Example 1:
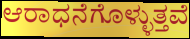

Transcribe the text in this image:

ಆರಾಧನೆಗೊಳ್ಳುತ್ತವೆ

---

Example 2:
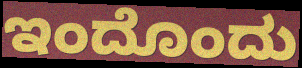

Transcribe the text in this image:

ಇಂದೊಂದು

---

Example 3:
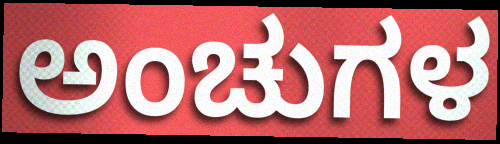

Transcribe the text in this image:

ಅಂಚುಗಳ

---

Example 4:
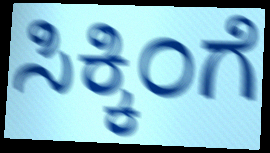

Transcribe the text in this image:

ಸಿಕ್ಕಿಂಗೆ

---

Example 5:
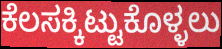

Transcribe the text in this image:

ಕೆಲಸಕ್ಕಿಟ್ಟುಕೊಳ್ಳಲು